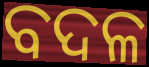
ବଦଳ